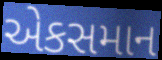
એકસમાન